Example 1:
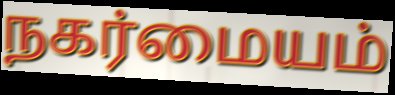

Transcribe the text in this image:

நகர்மையம்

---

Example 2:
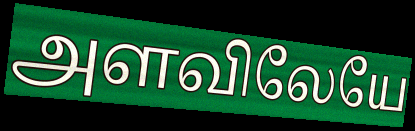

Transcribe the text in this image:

அளவிலேயே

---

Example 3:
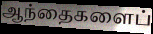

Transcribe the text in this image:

ஆந்தைகளைப்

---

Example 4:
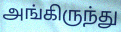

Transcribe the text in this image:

அங்கிருந்து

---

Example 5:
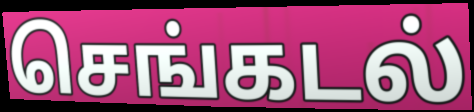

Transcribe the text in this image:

செங்கடல்